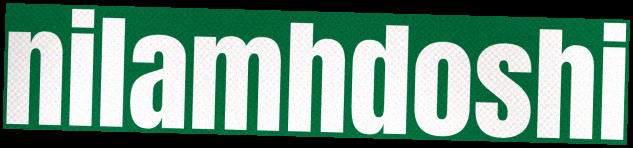
nilamhdoshi